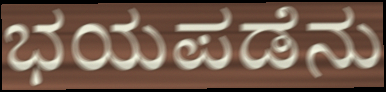
ಭಯಪಡೆನು